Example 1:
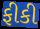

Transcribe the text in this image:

ફીકી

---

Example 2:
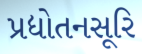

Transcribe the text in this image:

પ્રદ્યોતનસૂરિ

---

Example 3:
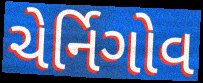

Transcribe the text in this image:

ચેર્નિગોવ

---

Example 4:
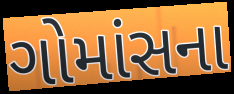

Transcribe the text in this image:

ગોમાંસના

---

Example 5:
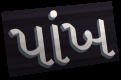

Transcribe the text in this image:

પાંખ